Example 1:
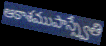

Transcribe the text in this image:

ఆకాశముపాస్స్వేతి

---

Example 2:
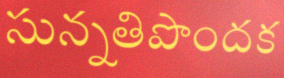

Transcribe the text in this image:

సున్నతిపొందక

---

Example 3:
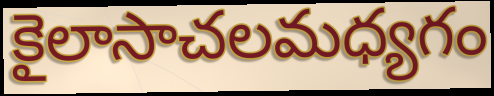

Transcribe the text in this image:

కైలాసాచలమధ్యగం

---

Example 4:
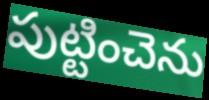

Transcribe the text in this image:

పుట్టించెను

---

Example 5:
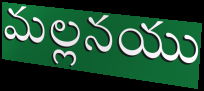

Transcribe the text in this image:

మల్లనయు